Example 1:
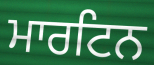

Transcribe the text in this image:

ਮਾਰਟਿਨ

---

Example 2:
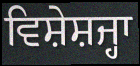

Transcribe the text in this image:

ਵਿਸ਼ੇਸ਼ਜ੍ਹਾ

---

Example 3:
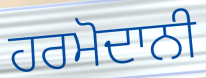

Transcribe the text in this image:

ਹਰਮੋਦਾਨੀ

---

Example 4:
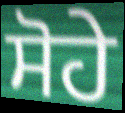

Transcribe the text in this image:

ਸੋਹੇ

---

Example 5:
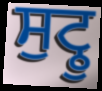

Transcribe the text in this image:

ਸੁਟ੍ਠੁ